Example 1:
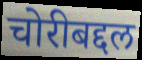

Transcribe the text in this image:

चोरीबद्दल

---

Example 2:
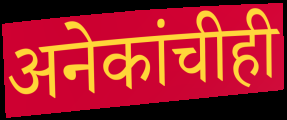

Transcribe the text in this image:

अनेकांचीही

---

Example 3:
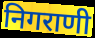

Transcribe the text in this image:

निगराणी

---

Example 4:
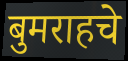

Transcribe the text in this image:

बुमराहचे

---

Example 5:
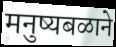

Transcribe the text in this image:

मनुष्यबळाने